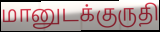
மானுடக்குருதி